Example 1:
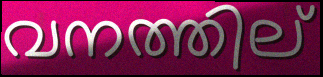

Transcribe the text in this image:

വനത്തില്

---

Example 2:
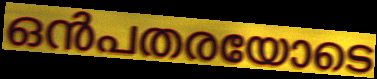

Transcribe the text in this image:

ഒൻപതരയോടെ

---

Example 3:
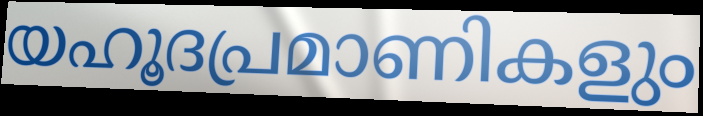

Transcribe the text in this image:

യഹൂദപ്രമാണികളും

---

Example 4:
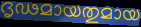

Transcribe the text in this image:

ദൃഢമായതുമായ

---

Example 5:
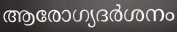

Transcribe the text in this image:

ആരോഗ്യദർശനം